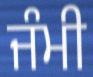
ਜੰਮੀ